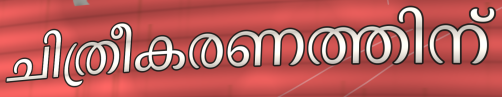
ചിത്രീകരണത്തിന്